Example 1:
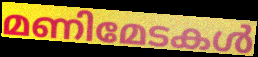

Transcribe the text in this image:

മണിമേടകൾ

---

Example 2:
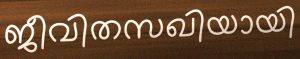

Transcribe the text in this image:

ജീവിതസഖിയായി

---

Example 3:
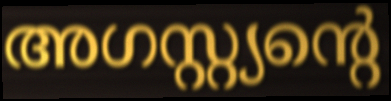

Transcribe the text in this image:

അഗസ്റ്റ്യന്റെ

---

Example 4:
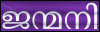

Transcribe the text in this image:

ജന്മനി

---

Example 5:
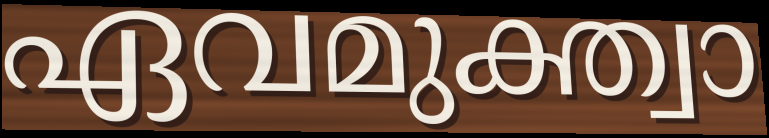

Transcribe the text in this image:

ഏവമുക്ത്വാ